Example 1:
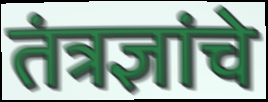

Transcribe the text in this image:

तंत्रज्ञांचे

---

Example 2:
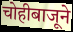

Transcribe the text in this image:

चोहीबाजूने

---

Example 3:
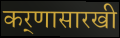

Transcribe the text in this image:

कर्णासारखी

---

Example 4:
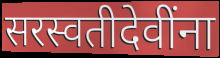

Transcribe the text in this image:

सरस्वतीदेवींना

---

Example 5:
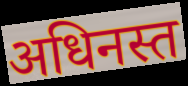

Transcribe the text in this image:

अधिनस्त